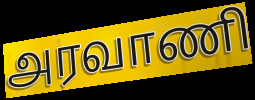
அரவாணி